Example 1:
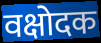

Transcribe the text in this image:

वक्षोदक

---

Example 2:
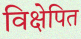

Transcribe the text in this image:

विक्षेपित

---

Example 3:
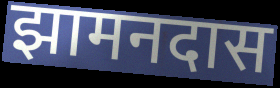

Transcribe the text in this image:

झामनदास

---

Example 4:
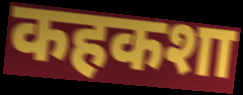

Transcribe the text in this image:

कहकशा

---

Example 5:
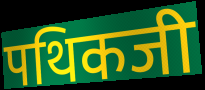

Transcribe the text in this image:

पथिकजी